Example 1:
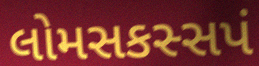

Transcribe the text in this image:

લોમસકસ્સપં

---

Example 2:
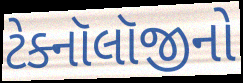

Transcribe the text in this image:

ટેક્નૉલૉજીનો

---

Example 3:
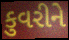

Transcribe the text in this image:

કુવરીને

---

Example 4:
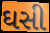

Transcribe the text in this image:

ઘસી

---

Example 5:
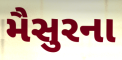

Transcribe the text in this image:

મૈસુરના